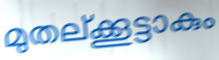
മുതല്ക്കൂട്ടാകും